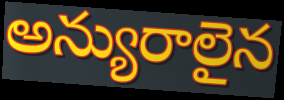
అన్యురాలైన